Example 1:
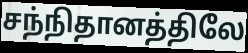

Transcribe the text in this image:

சந்நிதானத்திலே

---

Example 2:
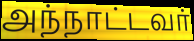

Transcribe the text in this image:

அந்நாட்டவர்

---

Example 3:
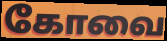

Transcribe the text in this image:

கோவை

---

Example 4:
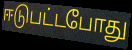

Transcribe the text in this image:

ஈடுபட்டபோது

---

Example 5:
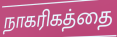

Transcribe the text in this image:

நாகரிகத்தை